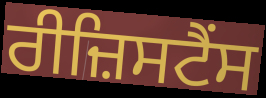
ਰੀਜ਼ਿਸਟੈਂਸ